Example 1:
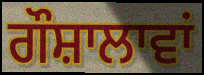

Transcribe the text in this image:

ਗੌਸ਼ਾਲਾਵਾਂ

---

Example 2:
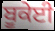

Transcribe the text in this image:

ਬੂਕੇਈ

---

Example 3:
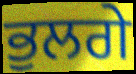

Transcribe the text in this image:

ਭੁਲਗੇ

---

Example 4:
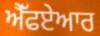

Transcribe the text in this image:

ਐੱਫਏਆਰ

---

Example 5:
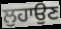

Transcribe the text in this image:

ਲੁਹਾਉਣ